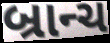
બ્રાન્ચ